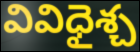
వివిధైశ్చ